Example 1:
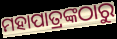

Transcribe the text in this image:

ମହାପାତ୍ରଙ୍କଠାରୁ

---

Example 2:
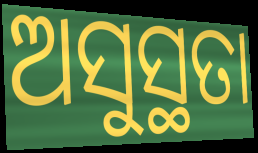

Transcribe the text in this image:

ଅସୁସ୍ଥତା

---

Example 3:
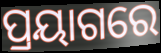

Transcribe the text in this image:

ପ୍ରୟାଗରେ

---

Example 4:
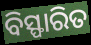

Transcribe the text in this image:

ବିସ୍ଫାରିତ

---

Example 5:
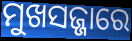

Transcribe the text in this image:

ମୁଖସଜ୍ଜାରେ